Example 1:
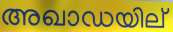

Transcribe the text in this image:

അഖാഡയില്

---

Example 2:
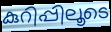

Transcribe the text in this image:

കുറിപ്പിലൂടെ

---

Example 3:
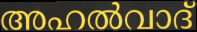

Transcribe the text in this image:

അഹൽവാദ്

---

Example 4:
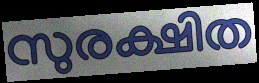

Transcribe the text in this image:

സുരക്ഷിത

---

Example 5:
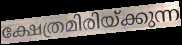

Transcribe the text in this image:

ക്ഷേത്രമിരിയ്ക്കുന്ന